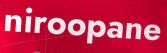
niroopane